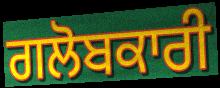
ਗਲੋਬਕਾਰੀ